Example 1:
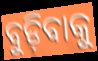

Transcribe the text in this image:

ବୁଡ଼ିବାକୁ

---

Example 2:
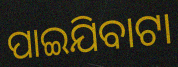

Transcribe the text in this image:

ପାଇଯିବାଟା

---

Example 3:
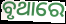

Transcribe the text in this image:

ବୃଥାରେ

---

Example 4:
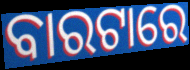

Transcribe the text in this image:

ବାରଟାରେ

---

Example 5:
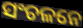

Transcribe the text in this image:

ସଂଚଳନେ